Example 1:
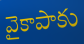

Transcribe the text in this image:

వైకాపాకు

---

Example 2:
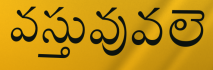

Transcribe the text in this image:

వస్తువువలె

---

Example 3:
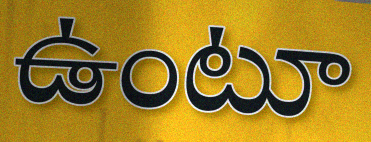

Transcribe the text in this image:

ఉంటూ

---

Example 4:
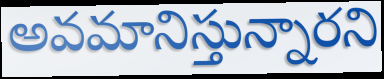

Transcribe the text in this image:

అవమానిస్తున్నారని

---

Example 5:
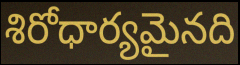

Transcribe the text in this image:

శిరోధార్యమైనది